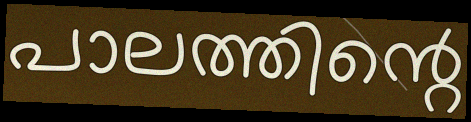
പാലത്തിന്റെ